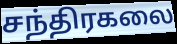
சந்திரகலை